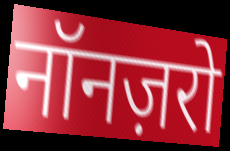
नॉनज़रो